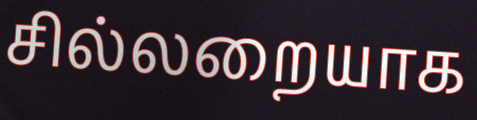
சில்லறையாக